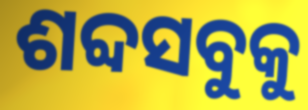
ଶବ୍ଦସବୁକୁ